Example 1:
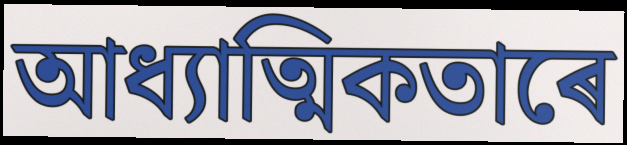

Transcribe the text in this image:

আধ্যাত্মিকতাৰে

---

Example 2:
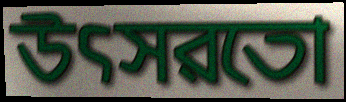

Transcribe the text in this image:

উৎসৱতো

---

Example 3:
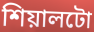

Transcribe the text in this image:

শিয়ালটো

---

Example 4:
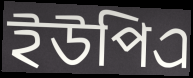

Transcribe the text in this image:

ইউপিএ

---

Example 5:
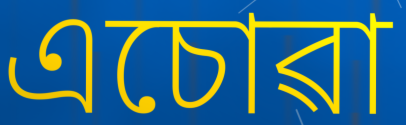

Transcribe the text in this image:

এচোৱা